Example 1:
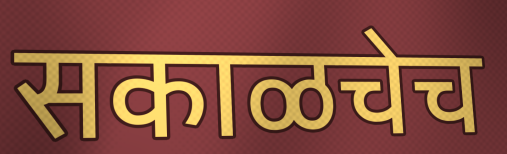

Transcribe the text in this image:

सकाळचेच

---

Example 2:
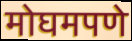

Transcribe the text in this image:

मोघमपणे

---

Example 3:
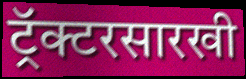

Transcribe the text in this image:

ट्रॅक्टरसारखी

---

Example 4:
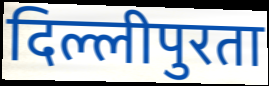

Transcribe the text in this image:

दिल्लीपुरता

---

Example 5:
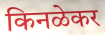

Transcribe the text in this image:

किनळेकर